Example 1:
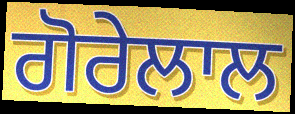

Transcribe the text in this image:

ਗੋਰੇਲਾਲ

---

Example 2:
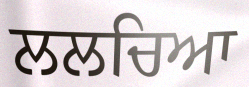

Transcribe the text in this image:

ਲਲਚਿਆ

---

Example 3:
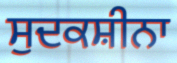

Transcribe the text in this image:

ਸੁਦਕਸ਼ੀਨਾ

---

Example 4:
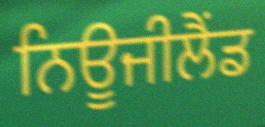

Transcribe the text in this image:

ਨਿਊਜੀਲੈਂਡ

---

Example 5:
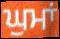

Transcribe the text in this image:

ਘੁਮਾਂ